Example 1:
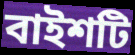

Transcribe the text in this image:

বাইশটি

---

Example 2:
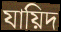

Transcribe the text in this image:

যায়িদ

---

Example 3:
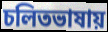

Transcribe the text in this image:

চলিতভাষায়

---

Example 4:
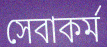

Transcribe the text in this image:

সেবাকর্ম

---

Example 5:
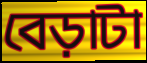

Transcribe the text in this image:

বেড়াটা